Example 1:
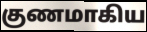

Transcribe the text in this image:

குணமாகிய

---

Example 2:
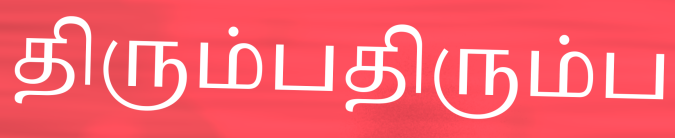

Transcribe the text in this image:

திரும்பதிரும்ப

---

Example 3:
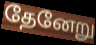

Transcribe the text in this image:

தேனேறு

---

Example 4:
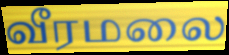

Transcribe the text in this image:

வீரமலை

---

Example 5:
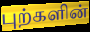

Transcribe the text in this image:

புற்களின்